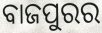
ବାଜପୁରର